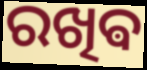
ରଖିଵ